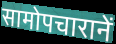
सामोपचारानें